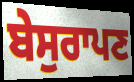
ਬੇਸੁਰਾਪਣ